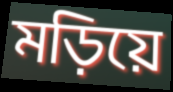
মড়িয়ে